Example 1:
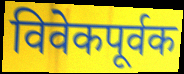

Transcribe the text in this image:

विवेकपूर्वक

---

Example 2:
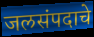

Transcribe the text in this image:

जलसंपदाचे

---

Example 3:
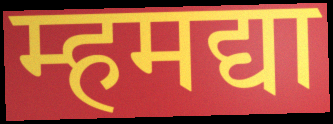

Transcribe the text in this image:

म्हमद्या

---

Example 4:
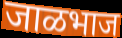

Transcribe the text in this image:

जाळभाज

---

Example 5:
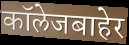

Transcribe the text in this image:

कॉलेजबाहेर